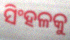
ସିଂହଳକୁ